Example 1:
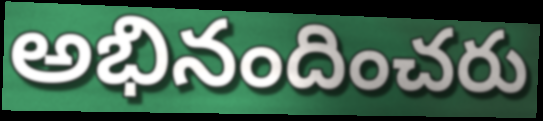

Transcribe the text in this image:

అభినందించరు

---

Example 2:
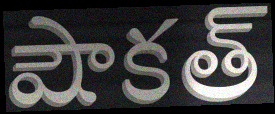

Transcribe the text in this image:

షౌకత్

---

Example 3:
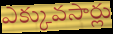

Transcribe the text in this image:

ఎక్కువసార్లు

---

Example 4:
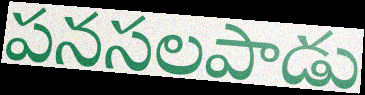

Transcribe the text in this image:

పనసలపాడు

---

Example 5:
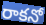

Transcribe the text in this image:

రాకనో